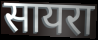
सायरा